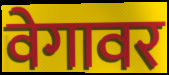
वेगावर